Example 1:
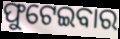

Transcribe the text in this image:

ଫୁଟେଇବାର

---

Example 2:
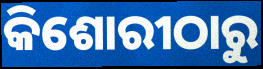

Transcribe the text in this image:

କିଶୋରୀଠାରୁ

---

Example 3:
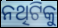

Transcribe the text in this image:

ନଥିଟିକୁ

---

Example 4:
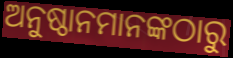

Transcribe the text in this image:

ଅନୁଷ୍ଠାନମାନଙ୍କଠାରୁ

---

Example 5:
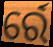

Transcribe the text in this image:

ର୍ରେ